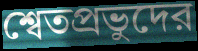
শ্বেতপ্রভুদের